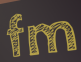
fm